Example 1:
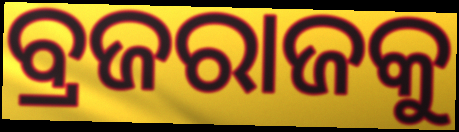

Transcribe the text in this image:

ବ୍ରଜରାଜକୁ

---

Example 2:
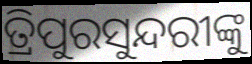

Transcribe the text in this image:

ତ୍ରିପୁରସୁନ୍ଦରୀଙ୍କୁ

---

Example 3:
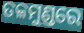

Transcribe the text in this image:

ତଳମୁଣ୍ଡରେ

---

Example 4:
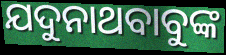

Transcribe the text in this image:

ଯଦୁନାଥବାବୁଙ୍କ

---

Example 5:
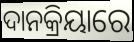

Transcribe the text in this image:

ଦାନକ୍ରିୟାରେ